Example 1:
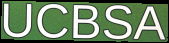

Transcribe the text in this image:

UCBSA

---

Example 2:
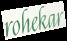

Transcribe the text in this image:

rohekar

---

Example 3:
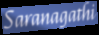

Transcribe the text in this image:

Saranagathi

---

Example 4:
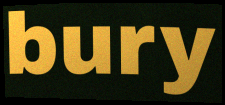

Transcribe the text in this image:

bury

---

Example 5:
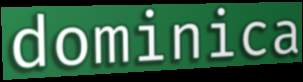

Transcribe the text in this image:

dominica